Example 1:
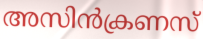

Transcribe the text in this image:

അസിൻക്രണസ്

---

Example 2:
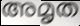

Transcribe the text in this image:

അമൃത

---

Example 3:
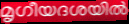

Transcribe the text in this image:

മൃഗീയദശയിൽ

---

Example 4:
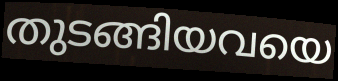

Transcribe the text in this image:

തുടങ്ങിയവയെ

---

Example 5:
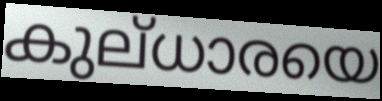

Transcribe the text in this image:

കുല്ധാരയെ